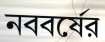
নববর্ষের